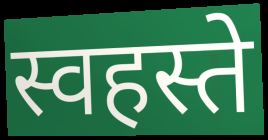
स्वहस्ते